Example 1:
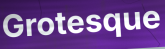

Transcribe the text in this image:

Grotesque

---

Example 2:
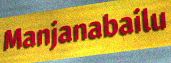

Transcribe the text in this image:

Manjanabailu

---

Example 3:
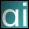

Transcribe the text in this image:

ai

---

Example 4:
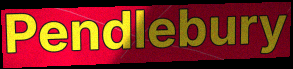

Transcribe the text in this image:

Pendlebury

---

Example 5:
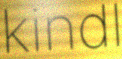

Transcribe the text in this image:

kindl